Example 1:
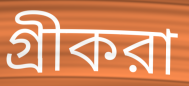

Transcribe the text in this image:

গ্রীকরা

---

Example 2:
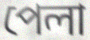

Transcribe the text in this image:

পেলা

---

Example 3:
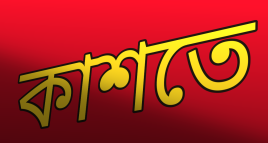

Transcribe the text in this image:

কাশতে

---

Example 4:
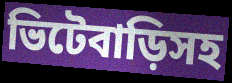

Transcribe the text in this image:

ভিটেবাড়িসহ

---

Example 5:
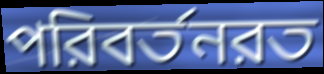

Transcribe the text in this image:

পরিবর্তনরত